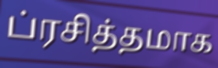
ப்ரசித்தமாக